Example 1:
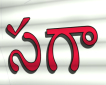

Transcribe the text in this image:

సగా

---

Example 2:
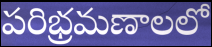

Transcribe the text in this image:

పరిభ్రమణాలలో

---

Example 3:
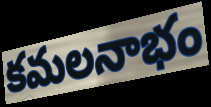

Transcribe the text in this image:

కమలనాభం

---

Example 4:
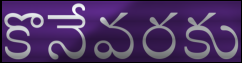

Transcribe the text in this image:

కొనేవరకు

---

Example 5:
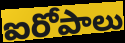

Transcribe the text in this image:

ఐరోపాలు